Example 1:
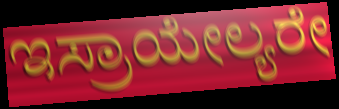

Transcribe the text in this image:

ಇಸ್ರಾಯೇಲ್ಯರೇ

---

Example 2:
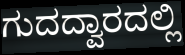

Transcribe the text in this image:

ಗುದದ್ವಾರದಲ್ಲಿ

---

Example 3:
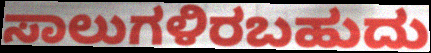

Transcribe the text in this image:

ಸಾಲುಗಳಿರಬಹುದು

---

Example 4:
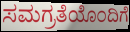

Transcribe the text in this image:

ಸಮಗ್ರತೆಯೊಂದಿಗೆ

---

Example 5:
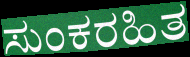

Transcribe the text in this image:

ಸುಂಕರಹಿತ